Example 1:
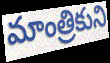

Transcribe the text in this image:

మాంత్రికుని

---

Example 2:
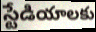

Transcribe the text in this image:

స్టేడియాలకు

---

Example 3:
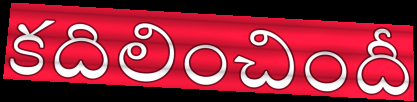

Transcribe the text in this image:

కదిలించిందీ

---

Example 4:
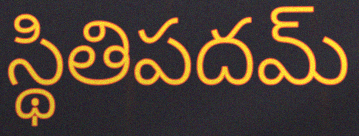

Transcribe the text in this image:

స్థితిపదమ్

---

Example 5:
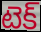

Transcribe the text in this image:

టెక్